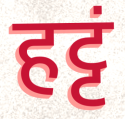
हट्टं